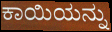
ಕಾಯಿಯನ್ನು